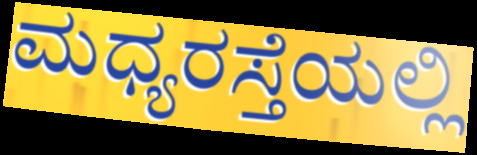
ಮಧ್ಯರಸ್ತೆಯಲ್ಲಿ